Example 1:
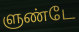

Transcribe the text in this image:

ளுண்டே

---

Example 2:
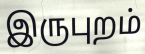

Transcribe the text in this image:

இருபுறம்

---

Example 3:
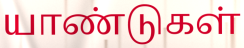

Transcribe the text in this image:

யாண்டுகள்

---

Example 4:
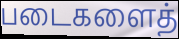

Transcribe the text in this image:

படைகளைத்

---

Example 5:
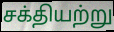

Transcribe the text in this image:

சக்தியற்று